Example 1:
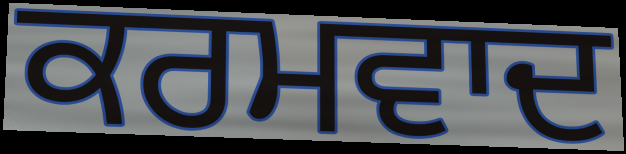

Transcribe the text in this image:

ਕਰਮਵਾਦ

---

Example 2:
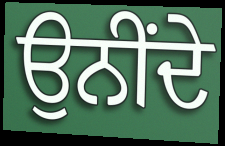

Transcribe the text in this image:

ਉਨੀਂਦੇ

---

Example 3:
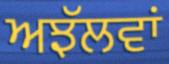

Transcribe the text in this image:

ਅਝੱਲਵਾਂ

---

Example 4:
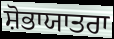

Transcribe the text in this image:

ਸ਼ੋਭਾਯਾਤਰਾ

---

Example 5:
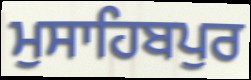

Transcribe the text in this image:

ਮੁਸਾਹਿਬਪੁਰ